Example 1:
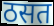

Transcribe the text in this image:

ठसत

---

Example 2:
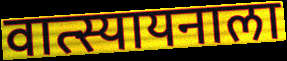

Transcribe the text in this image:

वात्स्यायनाला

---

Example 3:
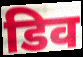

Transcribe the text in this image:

डिव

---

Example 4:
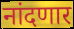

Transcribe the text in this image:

नांदणार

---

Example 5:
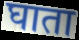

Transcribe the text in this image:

घाता